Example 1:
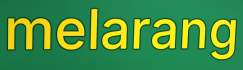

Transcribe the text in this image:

melarang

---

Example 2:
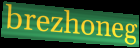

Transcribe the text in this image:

brezhoneg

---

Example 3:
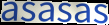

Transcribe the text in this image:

asasas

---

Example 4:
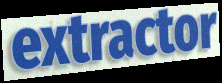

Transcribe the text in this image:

extractor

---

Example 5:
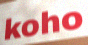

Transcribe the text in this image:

koho